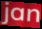
jan